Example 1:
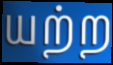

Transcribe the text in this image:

யற்ற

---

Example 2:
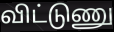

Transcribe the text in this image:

விட்டுணு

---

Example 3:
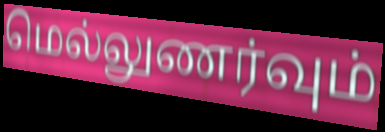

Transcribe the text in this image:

மெல்லுணர்வும்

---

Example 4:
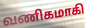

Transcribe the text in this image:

வணிகமாகி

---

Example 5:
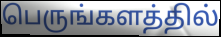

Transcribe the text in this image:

பெருங்களத்தில்